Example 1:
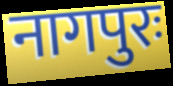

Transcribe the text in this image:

नागपुरः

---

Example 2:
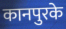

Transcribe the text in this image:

कानपुरके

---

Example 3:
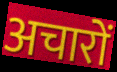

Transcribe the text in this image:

अचारों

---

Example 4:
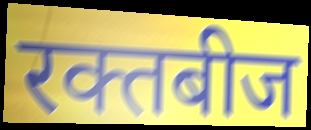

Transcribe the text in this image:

रक्तबीज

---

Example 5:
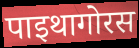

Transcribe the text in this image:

पाइथागोरस